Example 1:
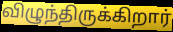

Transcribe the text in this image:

விழுந்திருக்கிறார்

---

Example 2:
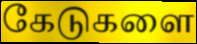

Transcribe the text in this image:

கேடுகளை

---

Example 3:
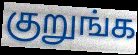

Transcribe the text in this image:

குறுங்க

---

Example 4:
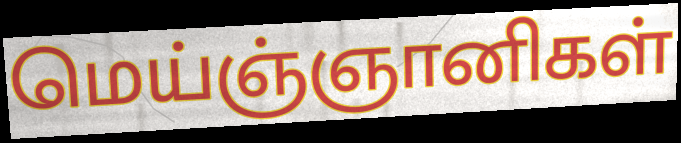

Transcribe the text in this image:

மெய்ஞ்ஞானிகள்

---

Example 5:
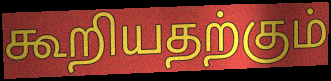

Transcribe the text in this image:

கூறியதற்கும்